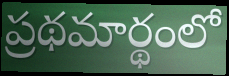
ప్రథమార్థంలో